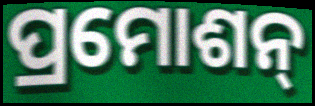
ପ୍ରମୋଶନ୍